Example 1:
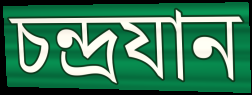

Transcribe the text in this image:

চন্দ্রযান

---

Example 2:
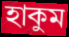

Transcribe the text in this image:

হাকুম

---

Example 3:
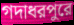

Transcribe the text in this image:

গদাধরপুরে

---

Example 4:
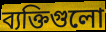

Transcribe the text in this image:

ব্যক্তিগুলো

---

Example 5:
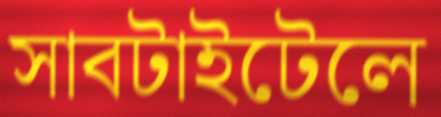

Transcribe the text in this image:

সাবটাইটেলে